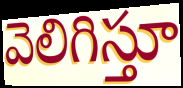
వెలిగిస్తూ